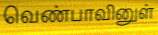
வெண்பாவினுள்